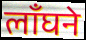
लाँघने